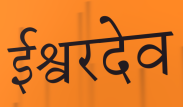
ईश्वरदेव